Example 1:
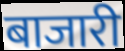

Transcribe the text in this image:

बाजारी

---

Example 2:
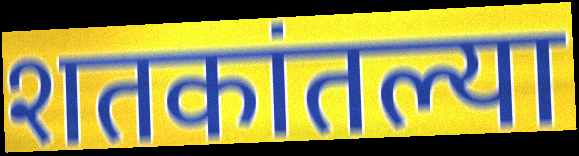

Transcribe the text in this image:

शतकांतल्या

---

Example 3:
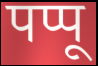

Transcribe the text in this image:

पप्पू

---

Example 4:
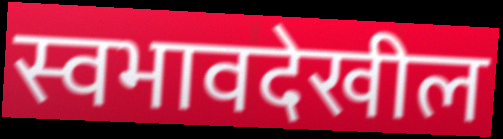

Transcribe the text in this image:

स्वभावदेखील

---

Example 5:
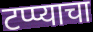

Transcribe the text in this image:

टप्प्याचा